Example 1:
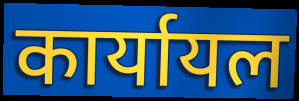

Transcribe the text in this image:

कार्यायल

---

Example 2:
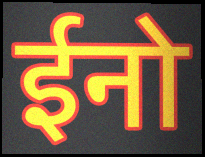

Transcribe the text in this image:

ईनो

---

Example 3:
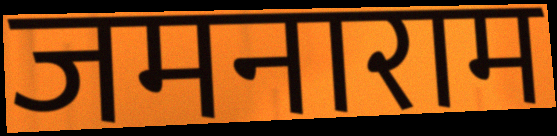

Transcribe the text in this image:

जमनाराम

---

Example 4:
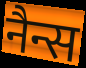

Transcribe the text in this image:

नैन्स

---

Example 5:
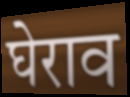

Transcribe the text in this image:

घेराव